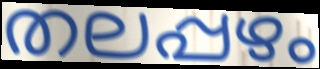
തലപ്പഴം